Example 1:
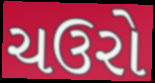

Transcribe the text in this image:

ચઉરો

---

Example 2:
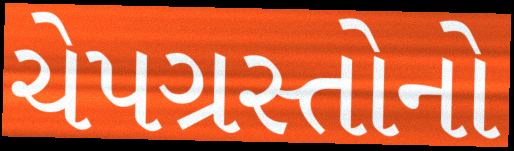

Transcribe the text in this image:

ચેપગ્રસ્તોનો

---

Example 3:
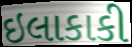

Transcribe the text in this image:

ઇલાકાકી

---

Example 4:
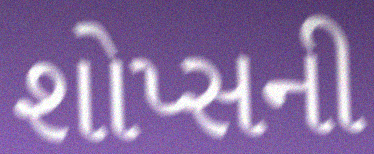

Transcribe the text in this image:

શોપ્સની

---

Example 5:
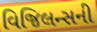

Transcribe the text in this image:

વિજિલન્સની